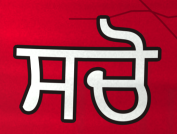
ਸਚੋ